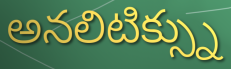
అనలిటిక్స్ను